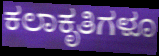
ಕಲಾಕೃತಿಗಳೂ